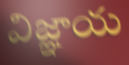
విజ్ఞాయ